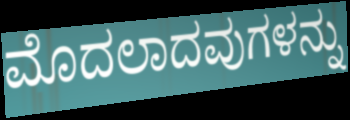
ಮೊದಲಾದವುಗಳನ್ನು